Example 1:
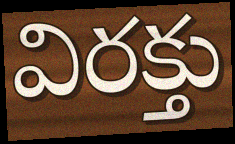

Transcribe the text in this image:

విరక్తు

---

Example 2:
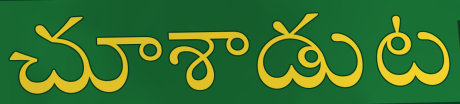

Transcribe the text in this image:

చూశాడుట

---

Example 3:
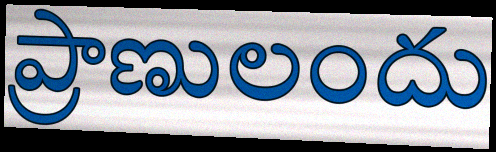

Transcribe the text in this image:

ప్రాణులందు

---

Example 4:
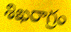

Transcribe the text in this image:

శిఖరాగ్రం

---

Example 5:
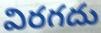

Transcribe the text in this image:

విరగదు